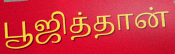
பூஜித்தான்